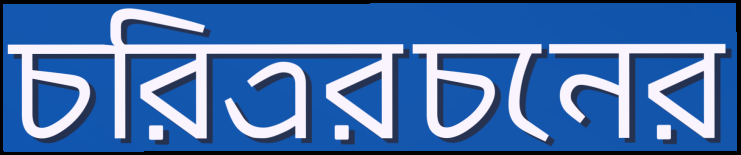
চরিত্ররচনের